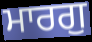
ਮਾਰਗੁ